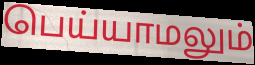
பெய்யாமலும்